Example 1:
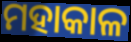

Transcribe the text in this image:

ମହାକାଳ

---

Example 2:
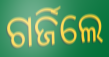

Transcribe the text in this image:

ଗର୍ଜିଲେ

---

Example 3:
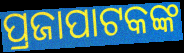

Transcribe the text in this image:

ପ୍ରଜାପାଟକଙ୍କ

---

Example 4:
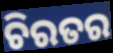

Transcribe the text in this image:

ଚିରତର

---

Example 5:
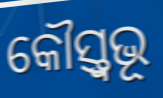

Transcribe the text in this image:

କୌସ୍ତ୍ୱଭୂ